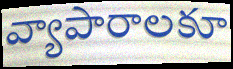
వ్యాపారాలకూ